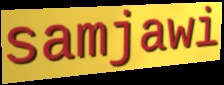
samjawi